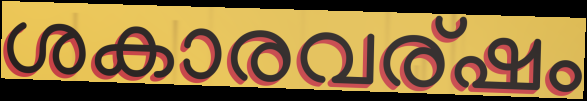
ശകാരവര്ഷം